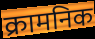
क्रामनिक